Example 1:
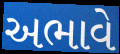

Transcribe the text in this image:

અભાવે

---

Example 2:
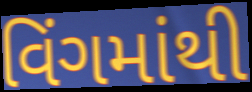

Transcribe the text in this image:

વિંગમાંથી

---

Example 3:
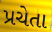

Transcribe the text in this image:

પ્રચેતા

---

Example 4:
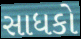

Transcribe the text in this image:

સાધકો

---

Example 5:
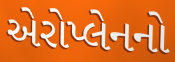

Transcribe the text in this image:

એરોપ્લેનનો